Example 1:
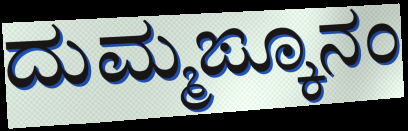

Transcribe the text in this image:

ದುಮ್ಮಙ್ಕೂನಂ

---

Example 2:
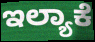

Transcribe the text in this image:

ಇಲ್ಯಾಕೆ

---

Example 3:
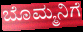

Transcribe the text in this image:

ಬೊಮ್ಮನಿಗೆ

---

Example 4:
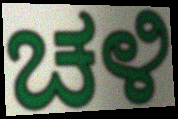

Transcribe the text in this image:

ಚಳಿ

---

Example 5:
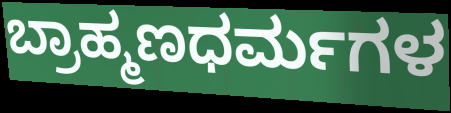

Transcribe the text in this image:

ಬ್ರಾಹ್ಮಣಧರ್ಮಗಳ